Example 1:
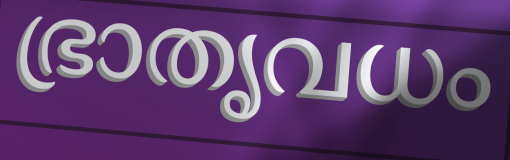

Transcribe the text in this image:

ഭ്രാതൃവധം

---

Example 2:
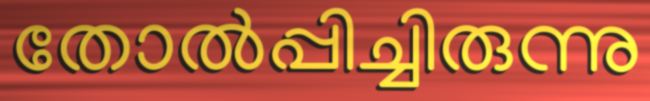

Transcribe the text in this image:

തോൽപ്പിച്ചിരുന്നു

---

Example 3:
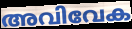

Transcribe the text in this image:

അവിവേക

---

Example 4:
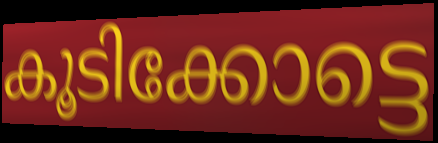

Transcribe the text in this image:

കൂടിക്കോട്ടെ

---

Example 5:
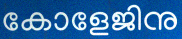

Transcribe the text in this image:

കോളേജിനു